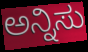
ಅನ್ನಿಸು